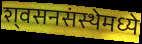
श्वसनसंस्थेमध्ये